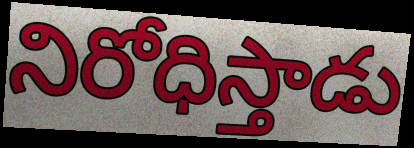
నిరోధిస్తాడు